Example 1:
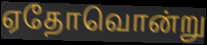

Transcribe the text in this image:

ஏதோவொன்று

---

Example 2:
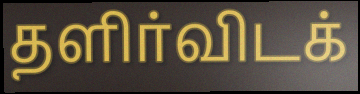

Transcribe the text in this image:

தளிர்விடக்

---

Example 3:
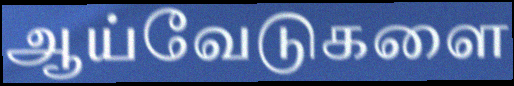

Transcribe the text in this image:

ஆய்வேடுகளை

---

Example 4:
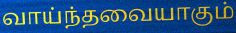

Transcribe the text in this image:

வாய்ந்தவையாகும்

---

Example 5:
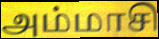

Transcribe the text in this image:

அம்மாசி